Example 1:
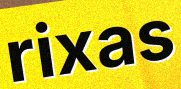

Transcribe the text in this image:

rixas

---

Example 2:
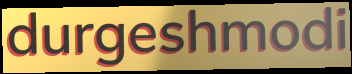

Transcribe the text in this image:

durgeshmodi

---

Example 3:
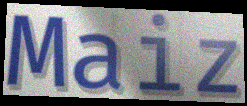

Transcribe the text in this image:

Maiz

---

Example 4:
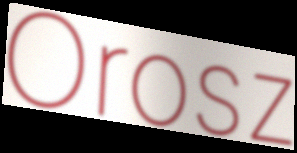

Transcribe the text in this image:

Orosz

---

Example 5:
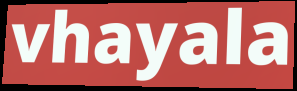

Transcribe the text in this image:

vhayala